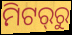
ମିଟର୍‍ରୁ